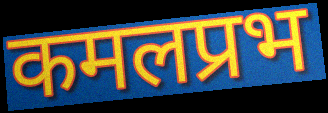
कमलप्रभ